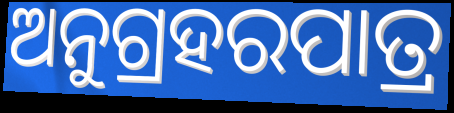
ଅନୁଗ୍ରହରପାତ୍ର